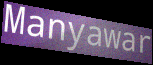
Manyawar